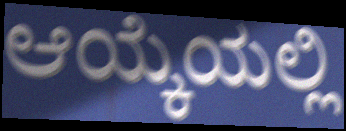
ಆಯ್ಕೆಯಲ್ಲಿ